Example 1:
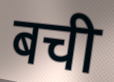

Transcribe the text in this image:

बची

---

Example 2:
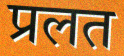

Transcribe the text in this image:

प्रलत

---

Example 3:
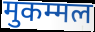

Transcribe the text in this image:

मुकम्मल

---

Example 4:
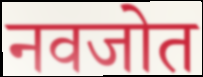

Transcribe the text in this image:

नवजोत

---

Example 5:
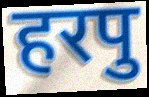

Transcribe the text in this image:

हरपु